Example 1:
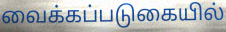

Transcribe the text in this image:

வைக்கப்படுகையில்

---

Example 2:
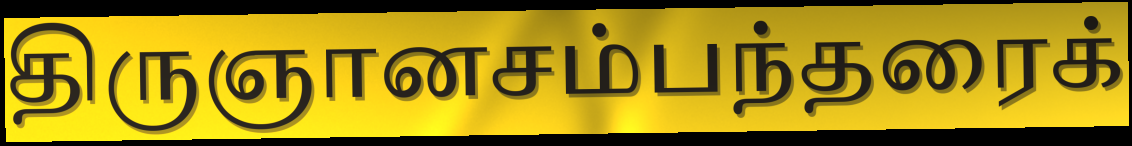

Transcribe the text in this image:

திருஞானசம்பந்தரைக்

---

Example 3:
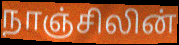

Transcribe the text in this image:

நாஞ்சிலின்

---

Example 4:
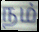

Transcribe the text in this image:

நம்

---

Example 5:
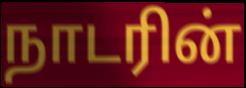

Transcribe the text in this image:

நாடரின்